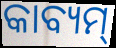
କାବ୍ୟମ୍